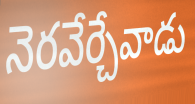
నెరవేర్చేవాడు